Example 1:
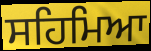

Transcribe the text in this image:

ਸਹਿਮਿਆ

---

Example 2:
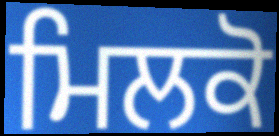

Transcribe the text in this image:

ਮਿਲਕੋ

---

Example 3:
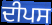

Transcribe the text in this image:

ਦੀਪਸ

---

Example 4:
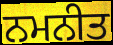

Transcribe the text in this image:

ਨਮਨੀਤ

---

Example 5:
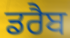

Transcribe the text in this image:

ਡਰੈਬ